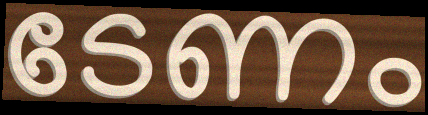
ടേണം